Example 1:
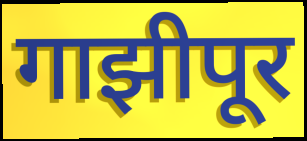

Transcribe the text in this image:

गाझीपूर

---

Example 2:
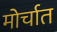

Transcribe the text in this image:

मोर्चात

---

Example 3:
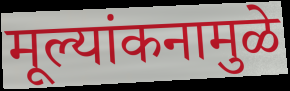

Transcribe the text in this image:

मूल्यांकनामुळे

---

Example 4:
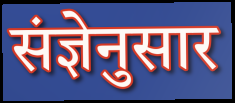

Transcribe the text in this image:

संज्ञेनुसार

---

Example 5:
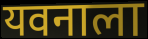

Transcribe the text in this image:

यवनाला